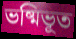
ভষ্মিভূত